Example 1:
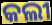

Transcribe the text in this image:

କଲୀ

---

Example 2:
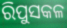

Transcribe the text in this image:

ରିପୁସକଳ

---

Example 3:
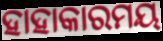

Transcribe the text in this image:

ହାହାକାରମୟ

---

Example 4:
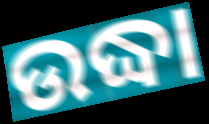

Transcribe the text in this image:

ଉଦ୍ଧା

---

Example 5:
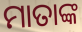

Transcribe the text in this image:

ମାତାଙ୍କ